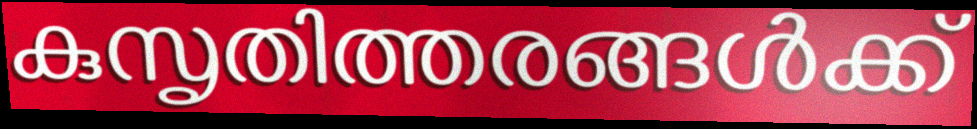
കുസൃതിത്തരങ്ങൾക്ക്